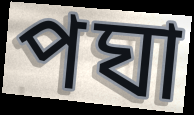
পঘা